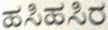
ಹಸಿಹಸಿರ